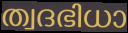
ത്വദഭിധാ